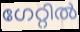
ഗേറ്റിൽ